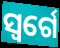
ସ୍ୱର୍ଗେ